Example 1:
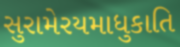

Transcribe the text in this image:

સુરામેરયમાધુકાતિ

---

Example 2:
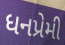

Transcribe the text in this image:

ધનપ્રેમી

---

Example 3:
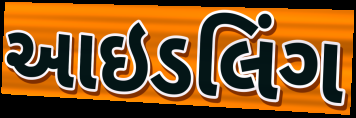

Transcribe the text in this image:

આઇડલિંગ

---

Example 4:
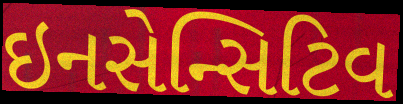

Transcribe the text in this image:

ઇનસેન્સિટિવ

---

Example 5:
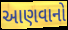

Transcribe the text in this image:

આણવાનો